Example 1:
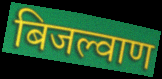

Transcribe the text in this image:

बिजल्वाण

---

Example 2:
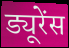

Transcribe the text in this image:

ड्यूरेंस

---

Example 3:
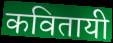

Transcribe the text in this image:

कवितायी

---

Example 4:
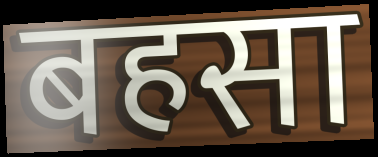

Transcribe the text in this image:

बहसा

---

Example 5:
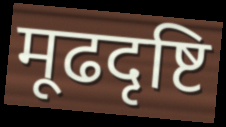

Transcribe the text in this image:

मूढदृष्टि